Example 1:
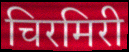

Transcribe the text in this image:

चिरमिरी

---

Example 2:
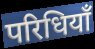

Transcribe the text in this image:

परिधियाँ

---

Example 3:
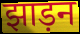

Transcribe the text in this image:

झाड़न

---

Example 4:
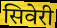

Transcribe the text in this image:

सिवेरी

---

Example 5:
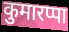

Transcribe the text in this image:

कुमारप्पा